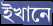
ইখানে